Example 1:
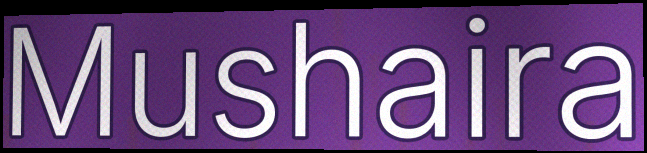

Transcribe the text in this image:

Mushaira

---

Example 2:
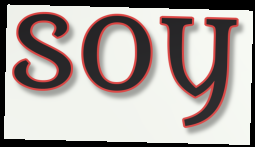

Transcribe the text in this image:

soy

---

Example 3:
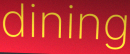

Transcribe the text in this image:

dining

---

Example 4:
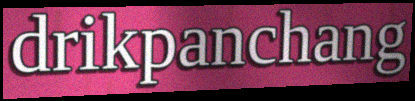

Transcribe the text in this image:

drikpanchang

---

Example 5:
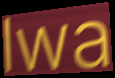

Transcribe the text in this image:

lwa